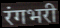
रंगभरी